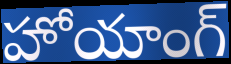
హోయాంగ్